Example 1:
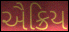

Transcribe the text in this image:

ઐક્રિય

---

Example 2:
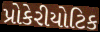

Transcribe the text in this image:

પ્રોકેરીયોટિક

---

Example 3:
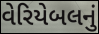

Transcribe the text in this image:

વેરિયેબલનું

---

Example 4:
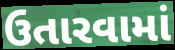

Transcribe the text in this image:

ઉતારવામાં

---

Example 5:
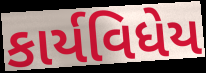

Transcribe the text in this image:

કાર્યવિધેય